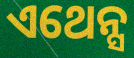
ଏଥେନ୍ସ